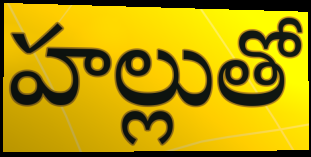
హల్లుతో